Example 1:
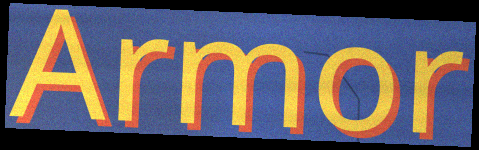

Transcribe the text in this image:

Armor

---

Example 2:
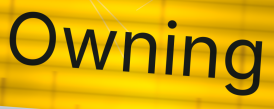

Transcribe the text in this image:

Owning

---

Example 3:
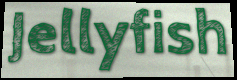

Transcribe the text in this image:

Jellyfish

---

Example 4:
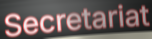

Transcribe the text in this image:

Secretariat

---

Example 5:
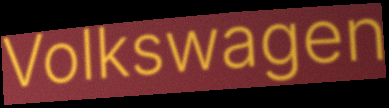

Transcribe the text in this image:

Volkswagen